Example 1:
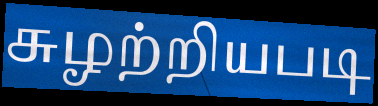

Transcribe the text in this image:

சுழற்றியபடி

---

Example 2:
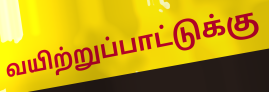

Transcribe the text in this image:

வயிற்றுப்பாட்டுக்கு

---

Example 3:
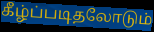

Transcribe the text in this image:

கீழ்ப்படிதலோடும்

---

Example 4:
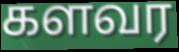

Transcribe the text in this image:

களவர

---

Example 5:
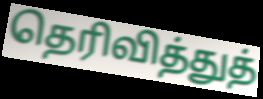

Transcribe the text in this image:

தெரிவித்துத்